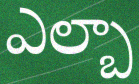
ఎల్బా